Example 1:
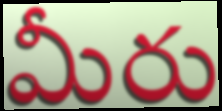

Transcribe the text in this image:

మీరు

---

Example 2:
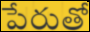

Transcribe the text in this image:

పేరుతో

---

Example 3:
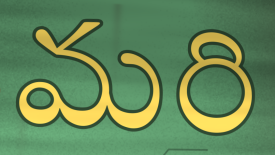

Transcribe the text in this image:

మరి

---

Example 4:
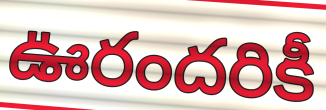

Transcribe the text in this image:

ఊరందరికీ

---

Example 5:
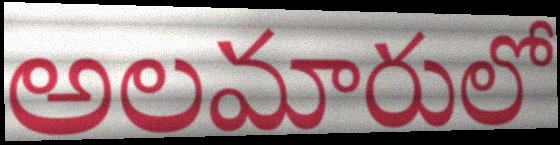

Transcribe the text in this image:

అలమారులో